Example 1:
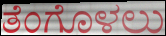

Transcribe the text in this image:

ತೆಂಗೊಳಲು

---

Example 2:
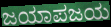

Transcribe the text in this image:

ಜಯಾಪಜಯ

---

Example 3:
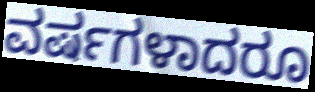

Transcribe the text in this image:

ವರ್ಷಗಳಾದರೂ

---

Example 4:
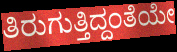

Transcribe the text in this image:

ತಿರುಗುತ್ತಿದ್ದಂತೆಯೇ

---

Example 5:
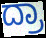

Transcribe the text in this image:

ದ್ರಾ